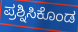
ಪ್ರಶ್ನಿಸಿಕೊಂಡ